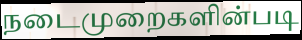
நடைமுறைகளின்படி